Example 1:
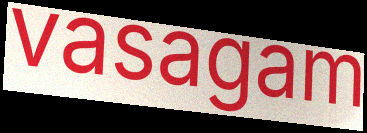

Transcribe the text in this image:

vasagam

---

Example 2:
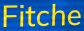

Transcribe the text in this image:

Fitche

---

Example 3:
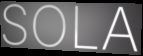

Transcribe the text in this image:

SOLA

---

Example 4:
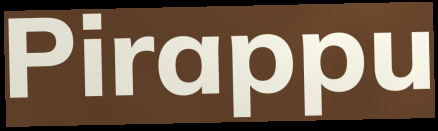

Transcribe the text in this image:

Pirappu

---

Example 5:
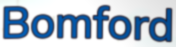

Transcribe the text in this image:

Bomford